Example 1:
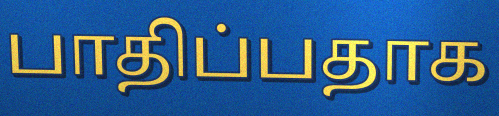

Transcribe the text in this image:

பாதிப்பதாக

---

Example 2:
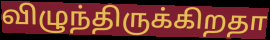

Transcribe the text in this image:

விழுந்திருக்கிறதா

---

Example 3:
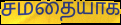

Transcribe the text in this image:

சமதையாக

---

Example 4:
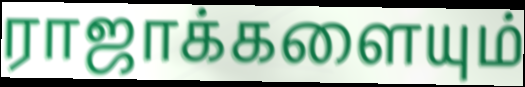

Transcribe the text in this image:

ராஜாக்களையும்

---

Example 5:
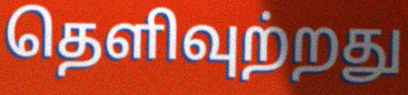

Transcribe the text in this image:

தெளிவுற்றது